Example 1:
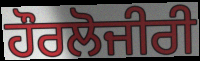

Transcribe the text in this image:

ਹੌਰਲੋਜੀਰੀ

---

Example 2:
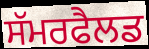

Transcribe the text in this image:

ਸੱਮਰਫੈਲਡ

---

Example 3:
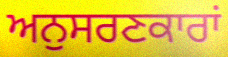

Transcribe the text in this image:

ਅਨੁਸਰਣਕਾਰਾਂ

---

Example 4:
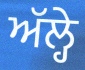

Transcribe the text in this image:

ਅੱਲ੍ਹੇ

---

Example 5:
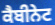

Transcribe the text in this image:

ਕੈਬੀਨੇਟ